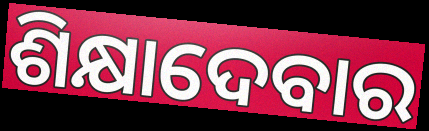
ଶିକ୍ଷାଦେବାର